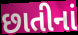
છાતીનાં